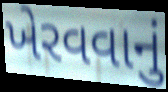
ખેરવવાનું